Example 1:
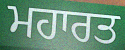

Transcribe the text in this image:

ਮਹਾਰਤ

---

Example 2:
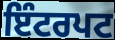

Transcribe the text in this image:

ਇੰਟਰਪਟ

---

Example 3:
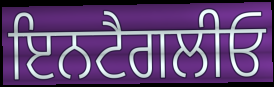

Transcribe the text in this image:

ਇਨਟੈਗਲੀਓ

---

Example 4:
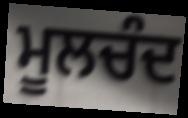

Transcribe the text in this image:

ਮੂਲਚੰਦ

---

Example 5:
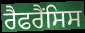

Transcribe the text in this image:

ਰੈਫਰੈਂਸਿਸ